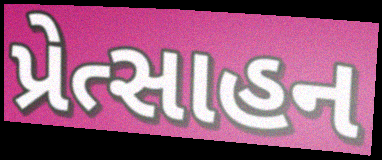
પ્રેત્સાહન